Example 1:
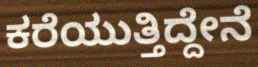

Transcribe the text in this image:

ಕರೆಯುತ್ತಿದ್ದೇನೆ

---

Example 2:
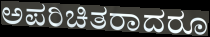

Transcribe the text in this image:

ಅಪರಿಚಿತರಾದರೂ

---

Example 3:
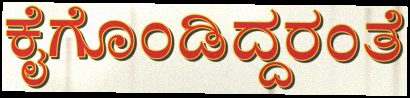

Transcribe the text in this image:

ಕೈಗೊಂಡಿದ್ದರಂತೆ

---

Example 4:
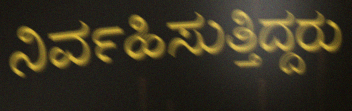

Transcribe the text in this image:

ನಿರ್ವಹಿಸುತ್ತಿದ್ದರು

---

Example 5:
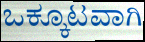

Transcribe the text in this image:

ಒಕ್ಕೂಟವಾಗಿ